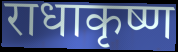
राधाकृष्ण